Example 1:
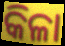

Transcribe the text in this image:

କିଳା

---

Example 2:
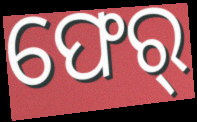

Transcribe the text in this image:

ଫେର୍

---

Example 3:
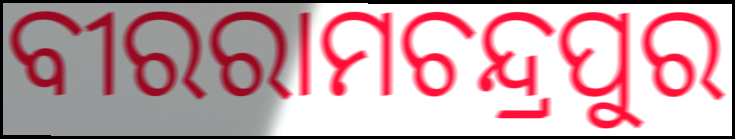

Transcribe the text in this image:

ବୀରରାମଚନ୍ଦ୍ରପୁର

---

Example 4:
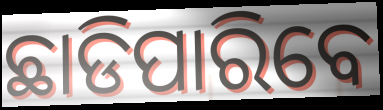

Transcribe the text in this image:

ଛାଡିପାରିବେ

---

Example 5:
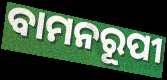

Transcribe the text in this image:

ବାମନରୂପୀ